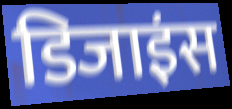
डिजाइंस